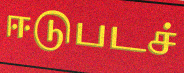
ஈடுபடச்